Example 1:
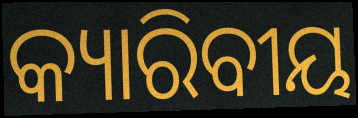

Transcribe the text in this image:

କ୍ୟାରିବୀୟ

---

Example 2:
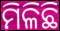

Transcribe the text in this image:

ମିଳିଛି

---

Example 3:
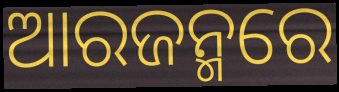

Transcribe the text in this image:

ଆରଜନ୍ମରେ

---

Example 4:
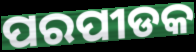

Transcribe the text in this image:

ପରପୀଡକ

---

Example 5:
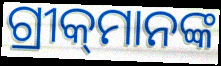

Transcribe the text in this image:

ଗ୍ରୀକ୍‌ମାନଙ୍କ